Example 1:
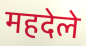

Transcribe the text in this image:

महदेले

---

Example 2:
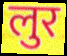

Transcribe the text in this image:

लुर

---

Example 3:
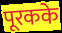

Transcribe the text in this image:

पूरकके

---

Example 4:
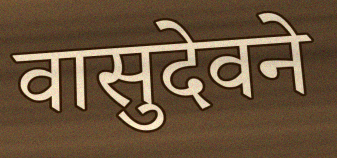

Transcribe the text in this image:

वासुदेवने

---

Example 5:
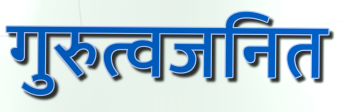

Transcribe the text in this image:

गुरुत्वजनित